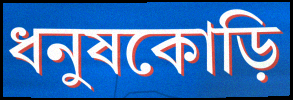
ধনুষকোড়ি